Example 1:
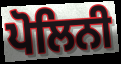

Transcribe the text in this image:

ਪੋਲਿਨੀ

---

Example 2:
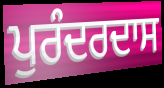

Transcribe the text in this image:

ਪੁਰੰਦਰਦਾਸ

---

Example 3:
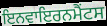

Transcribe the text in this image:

ਇਨਵਾਇਰਨਮੈਂਟਸ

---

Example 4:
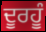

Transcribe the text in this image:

ਦੂਰਹੂੰ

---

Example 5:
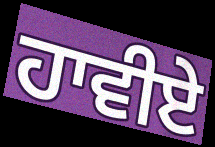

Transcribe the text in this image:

ਹਾਵੀਏ